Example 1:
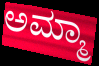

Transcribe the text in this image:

ಅಮ್ಮಾ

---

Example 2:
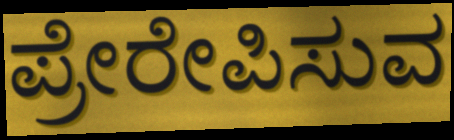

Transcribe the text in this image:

ಪ್ರೇರೇಪಿಸುವ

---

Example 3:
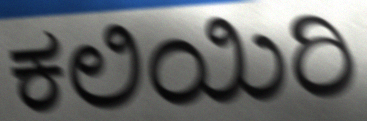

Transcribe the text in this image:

ಕಲಿಯಿರಿ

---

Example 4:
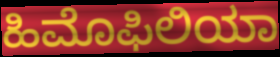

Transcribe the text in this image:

ಹಿಮೊಫಿಲಿಯಾ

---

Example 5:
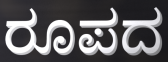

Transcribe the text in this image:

ರೂಪದ